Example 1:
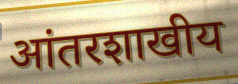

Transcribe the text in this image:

आंतरशाखीय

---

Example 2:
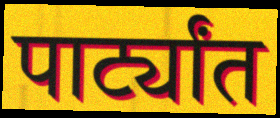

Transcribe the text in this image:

पार्ट्यांत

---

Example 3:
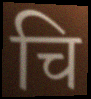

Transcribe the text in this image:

चि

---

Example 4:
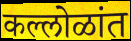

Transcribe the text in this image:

कल्लोळांत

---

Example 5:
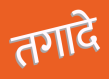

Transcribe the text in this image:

तगादे